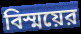
বিস্ময়ের